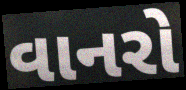
વાનરો